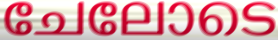
ചേലോടെ